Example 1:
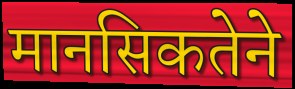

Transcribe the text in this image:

मानसिकतेने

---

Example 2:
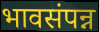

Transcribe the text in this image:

भावसंपन्न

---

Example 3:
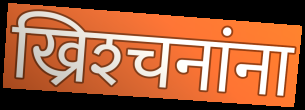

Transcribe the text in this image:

ख्रिश्‍चनांना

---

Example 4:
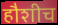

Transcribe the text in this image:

हौशीच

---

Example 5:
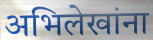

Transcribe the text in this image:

अभिलेखांना